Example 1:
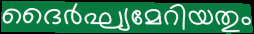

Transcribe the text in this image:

ദൈർഘ്യമേറിയതും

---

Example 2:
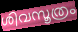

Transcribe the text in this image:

ശിവസൂത്രം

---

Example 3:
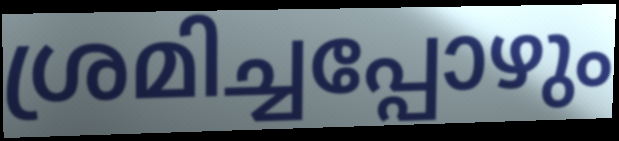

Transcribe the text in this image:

ശ്രമിച്ചപ്പോഴും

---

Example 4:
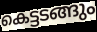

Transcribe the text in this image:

കെട്ടടങ്ങും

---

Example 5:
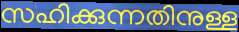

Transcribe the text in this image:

സഹിക്കുന്നതിനുള്ള